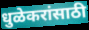
धुळेकरांसाठी